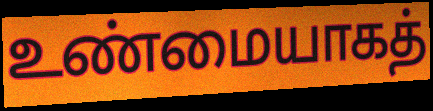
உண்மையாகத்